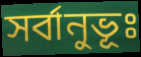
সর্বানুভূঃ